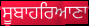
ਸੂਬਾਹਰਿਆਣਾ